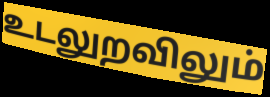
உடலுறவிலும்